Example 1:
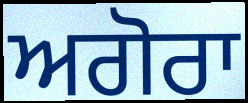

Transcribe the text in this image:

ਅਗੋਰਾ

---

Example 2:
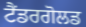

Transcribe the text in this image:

ਟੈਂਡਰਗੋਲਡ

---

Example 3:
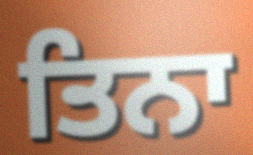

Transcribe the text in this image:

ਤਿਨਾ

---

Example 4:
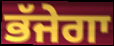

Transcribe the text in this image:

ਭੱਜੇਗਾ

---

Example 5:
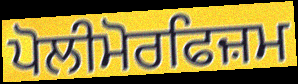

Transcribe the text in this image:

ਪੋਲੀਮੋਰਫਿਜ਼ਮ